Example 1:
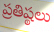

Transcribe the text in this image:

ప్రతిష్ఠలు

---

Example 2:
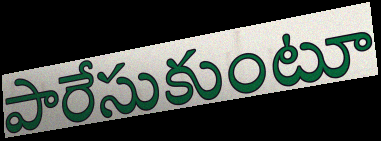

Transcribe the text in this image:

పారేసుకుంటూ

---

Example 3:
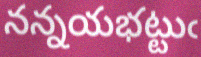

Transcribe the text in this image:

నన్నయభట్టుఁ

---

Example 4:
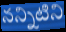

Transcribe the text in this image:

నన్నిటిని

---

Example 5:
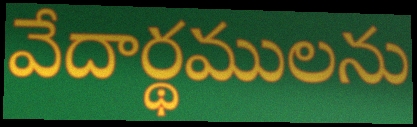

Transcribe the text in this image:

వేదార్థములను